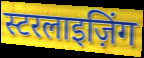
स्टरलाइज़िंग